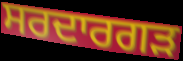
ਸਰਦਾਰਗੜ